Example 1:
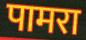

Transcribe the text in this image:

पामरा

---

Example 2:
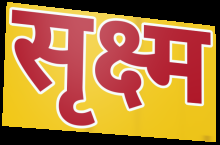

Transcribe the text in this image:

सृक्ष्म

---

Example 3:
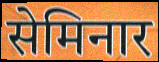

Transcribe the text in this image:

सेमिनार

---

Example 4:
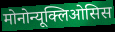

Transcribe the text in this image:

मोनोन्यूक्लिओसिस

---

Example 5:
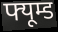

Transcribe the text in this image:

फ्यूम्ड